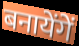
बनायेंगें